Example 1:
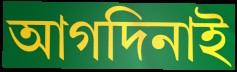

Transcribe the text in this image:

আগদিনাই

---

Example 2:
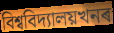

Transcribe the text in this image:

বিশ্ববিদ্যালয়খনৰ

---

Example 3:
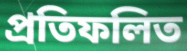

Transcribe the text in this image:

প্ৰতিফলিত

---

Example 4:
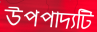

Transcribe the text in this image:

উপপাদ্যটি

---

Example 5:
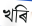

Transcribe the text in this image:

খৰি